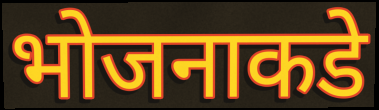
भोजनाकडे